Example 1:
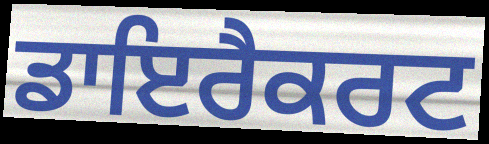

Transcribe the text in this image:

ਡਾਇਰੈਕਰਟ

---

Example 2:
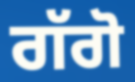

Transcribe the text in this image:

ਗੱਗੋ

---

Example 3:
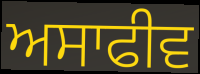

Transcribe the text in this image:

ਅਸਾਫੀਵ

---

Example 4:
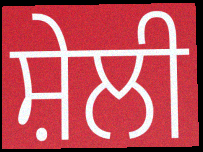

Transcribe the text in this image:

ਸ਼ੇਲੀ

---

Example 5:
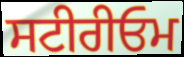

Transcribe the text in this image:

ਸਟੀਰੀਓਮ